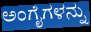
ಅಂಗೈಗಳನ್ನು